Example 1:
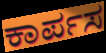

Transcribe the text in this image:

ಕಾರ್ಪಸ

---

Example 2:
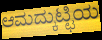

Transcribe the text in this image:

ಆಮದ್ಕುಟ್ಟಿಯ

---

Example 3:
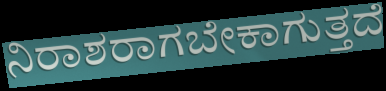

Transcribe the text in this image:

ನಿರಾಶರಾಗಬೇಕಾಗುತ್ತದೆ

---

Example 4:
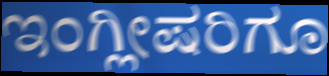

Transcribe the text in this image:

ಇಂಗ್ಲೀಷರಿಗೂ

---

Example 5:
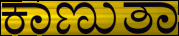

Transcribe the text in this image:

ಕಾಣುತಾ